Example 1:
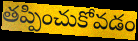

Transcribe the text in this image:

తప్పించుకోవడం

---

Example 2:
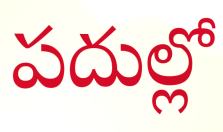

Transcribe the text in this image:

పదుల్లో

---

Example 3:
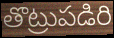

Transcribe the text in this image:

తొట్రుపడిరి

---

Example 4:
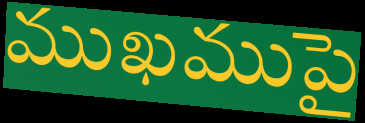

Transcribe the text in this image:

ముఖముపై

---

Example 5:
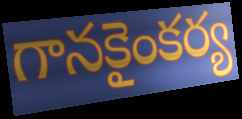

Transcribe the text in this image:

గానకైంకర్య